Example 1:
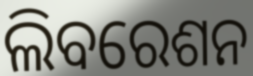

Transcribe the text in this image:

ଲିବରେଶନ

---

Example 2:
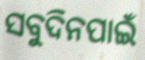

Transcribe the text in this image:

ସବୁଦିନପାଇଁ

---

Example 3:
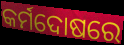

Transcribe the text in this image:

କର୍ମଦୋଷରେ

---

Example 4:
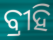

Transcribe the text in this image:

ବ୍ରୀହି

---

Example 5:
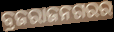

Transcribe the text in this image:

ବ୍ରଜରାଜନଗରର